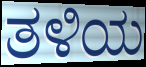
ತಳಿಯ